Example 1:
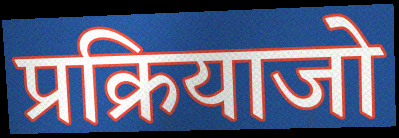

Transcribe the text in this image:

प्रक्रियाजो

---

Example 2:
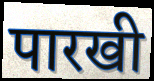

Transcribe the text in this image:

पारखी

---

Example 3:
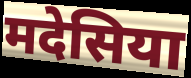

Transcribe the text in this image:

मदेसिया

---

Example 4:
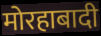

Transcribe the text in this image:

मोरहाबादी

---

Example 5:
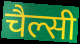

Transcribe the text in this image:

चैल्सी